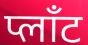
प्लाँट